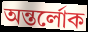
অন্তর্লোক